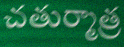
చతుర్మాత్ర